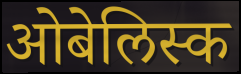
ओबेलिस्क